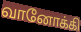
வானோக்கி